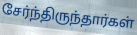
சேர்ந்திருந்தார்கள்